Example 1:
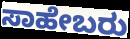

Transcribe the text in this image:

ಸಾಹೇಬರು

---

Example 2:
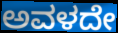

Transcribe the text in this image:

ಅವಳದೇ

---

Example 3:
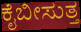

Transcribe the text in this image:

ಕೈಬೀಸುತ್ತ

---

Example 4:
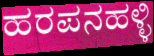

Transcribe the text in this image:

ಹರಪನಹಳ್ಳಿ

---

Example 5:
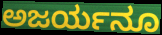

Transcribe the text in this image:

ಅಜರ್ಯನೂ